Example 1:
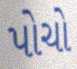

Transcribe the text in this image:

પોચો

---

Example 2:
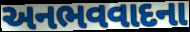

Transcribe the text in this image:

અનભવવાદના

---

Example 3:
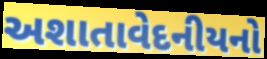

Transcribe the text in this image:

અશાતાવેદનીયનો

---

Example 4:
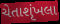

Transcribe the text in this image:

ચેતાશૃંખલા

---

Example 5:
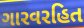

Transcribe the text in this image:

ગારવરહિત